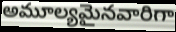
అమూల్యమైనవారిగా